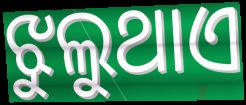
ଝୁଲୁଥାଏ